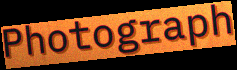
Photograph